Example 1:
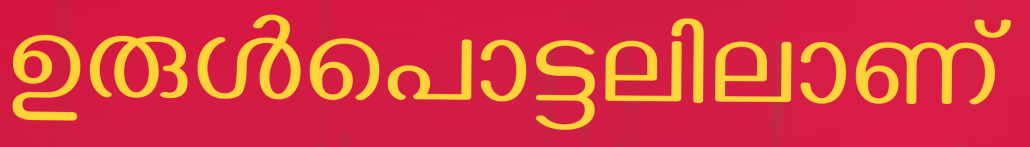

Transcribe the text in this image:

ഉരുൾപൊട്ടലിലാണ്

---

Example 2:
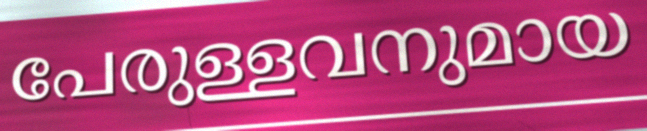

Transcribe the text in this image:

പേരുള്ളവനുമായ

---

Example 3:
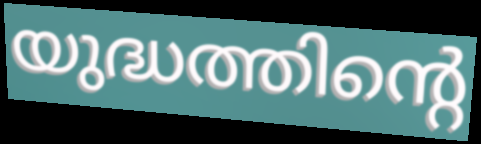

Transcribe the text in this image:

യുദ്ധത്തിന്റെ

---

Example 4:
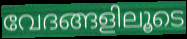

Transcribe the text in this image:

വേദങ്ങളിലൂടെ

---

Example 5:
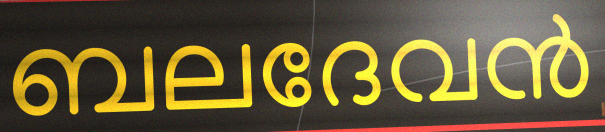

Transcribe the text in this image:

ബലദേവൻ